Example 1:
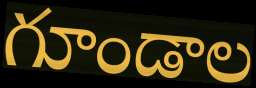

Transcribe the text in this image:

గూండాల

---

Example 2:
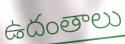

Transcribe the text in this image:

ఉదంతాలు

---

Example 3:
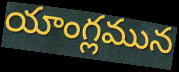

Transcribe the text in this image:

యాంగ్లమున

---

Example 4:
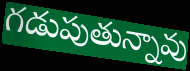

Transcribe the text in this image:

గడుపుతున్నావు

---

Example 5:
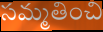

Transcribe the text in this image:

సమ్మతించి